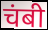
चंबी